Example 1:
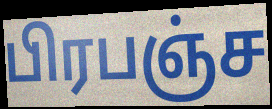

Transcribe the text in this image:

பிரபஞ்ச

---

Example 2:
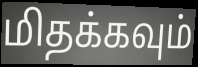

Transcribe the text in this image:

மிதக்கவும்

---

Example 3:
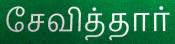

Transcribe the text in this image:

சேவித்தார்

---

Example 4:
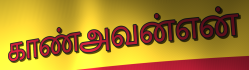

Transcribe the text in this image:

காண்அவன்என்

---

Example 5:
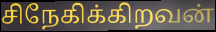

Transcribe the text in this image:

சிநேகிக்கிறவன்